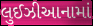
લુઈઝીઆનામાં